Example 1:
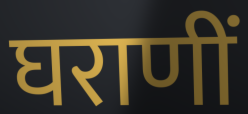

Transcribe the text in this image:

घराणीं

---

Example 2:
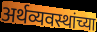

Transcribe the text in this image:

अर्थव्यवस्थांच्या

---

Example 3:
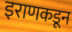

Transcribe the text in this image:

इराणकडून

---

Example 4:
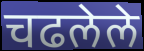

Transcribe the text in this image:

चढलेले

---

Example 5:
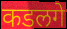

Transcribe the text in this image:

कडलगे